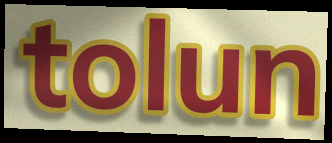
tolun